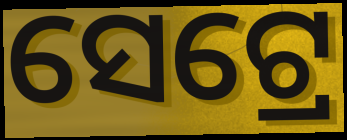
ସେଟ୍ରେ